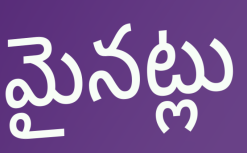
మైనట్లు